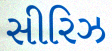
સીરિઝ